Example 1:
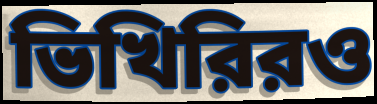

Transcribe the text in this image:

ভিখিরিরও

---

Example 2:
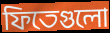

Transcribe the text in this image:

ফিতেগুলো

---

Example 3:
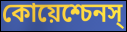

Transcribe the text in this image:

কোয়েশ্চেনস্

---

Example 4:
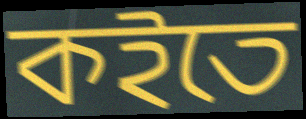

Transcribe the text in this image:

কইতে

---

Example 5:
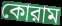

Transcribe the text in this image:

কোরাম